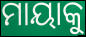
ମାୟାକୁ